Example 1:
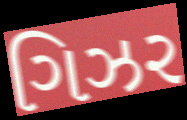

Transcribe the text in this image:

ગિઝર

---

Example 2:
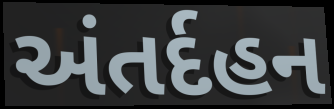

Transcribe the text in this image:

અંતર્દહન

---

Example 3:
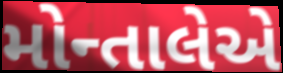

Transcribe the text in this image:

મોન્તાલેએ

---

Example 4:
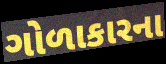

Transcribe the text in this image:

ગોળાકારના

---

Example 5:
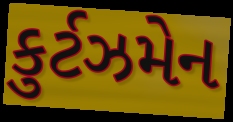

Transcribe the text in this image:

કુર્ટઝમેન